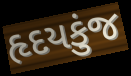
હૃદયકુંજ